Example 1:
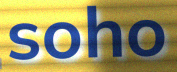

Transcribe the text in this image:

soho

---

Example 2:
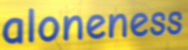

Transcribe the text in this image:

aloneness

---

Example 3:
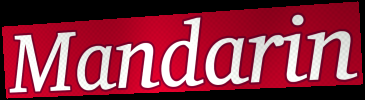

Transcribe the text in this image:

Mandarin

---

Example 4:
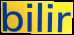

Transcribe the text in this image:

bilir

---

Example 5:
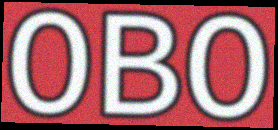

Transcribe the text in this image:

OBO